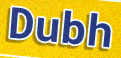
Dubh